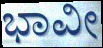
ಭಾವೀ